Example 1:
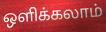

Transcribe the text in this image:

ஒளிக்கலாம்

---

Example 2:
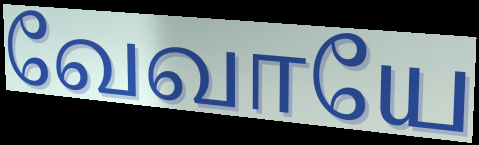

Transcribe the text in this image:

வேவாயே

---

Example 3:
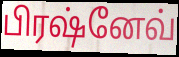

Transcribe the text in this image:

பிரஷ்னேவ்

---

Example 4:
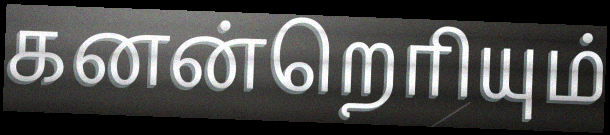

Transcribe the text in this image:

கனன்றெரியும்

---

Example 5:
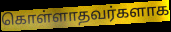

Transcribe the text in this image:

கொள்ளாதவர்களாக